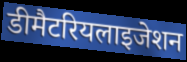
डीमैटरियलाइजेशन